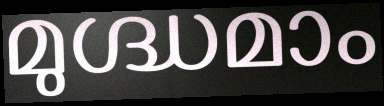
മുഗ്ദ്ധമാം